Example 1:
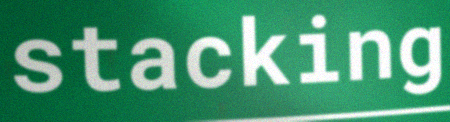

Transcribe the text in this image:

stacking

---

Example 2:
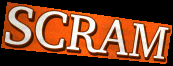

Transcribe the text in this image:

SCRAM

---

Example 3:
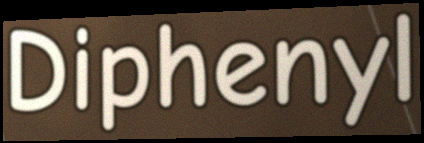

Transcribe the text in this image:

Diphenyl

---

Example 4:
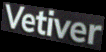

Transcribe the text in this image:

Vetiver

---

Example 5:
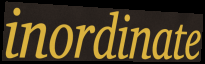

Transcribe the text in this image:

inordinate